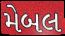
મેબલ